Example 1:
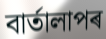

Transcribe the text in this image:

বাৰ্তালাপৰ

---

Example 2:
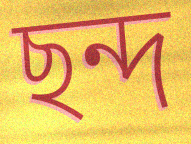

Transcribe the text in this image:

ছন্দ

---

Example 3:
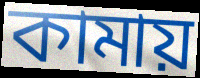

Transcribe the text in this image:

কামায়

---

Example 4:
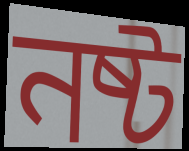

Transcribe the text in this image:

নষ্ট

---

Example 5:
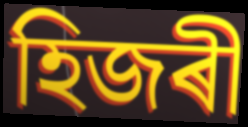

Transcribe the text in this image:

হিজৰী